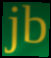
jb